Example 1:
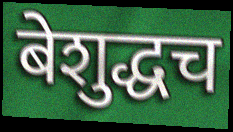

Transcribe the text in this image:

बेशुद्धच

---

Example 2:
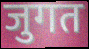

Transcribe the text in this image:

जुगत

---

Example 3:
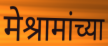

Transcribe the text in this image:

मेश्रामांच्या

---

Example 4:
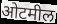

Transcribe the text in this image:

ओटमील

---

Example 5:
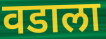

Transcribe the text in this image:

वडाला